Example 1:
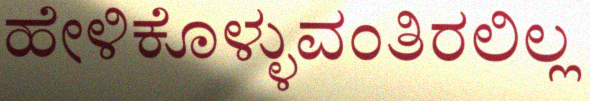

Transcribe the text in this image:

ಹೇಳಿಕೊಳ್ಳುವಂತಿರಲಿಲ್ಲ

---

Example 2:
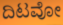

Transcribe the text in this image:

ದಿಟವೋ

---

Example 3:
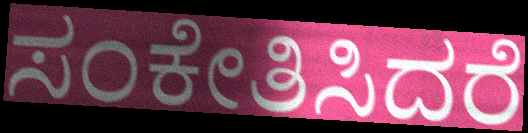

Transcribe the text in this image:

ಸಂಕೇತಿಸಿದರೆ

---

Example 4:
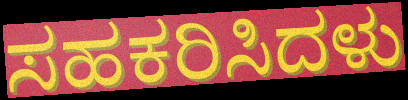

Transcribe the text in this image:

ಸಹಕರಿಸಿದಳು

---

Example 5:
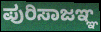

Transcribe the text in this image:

ಪುರಿಸಾಜಞ್ಞ